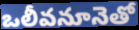
ఒలీవనూనెతో